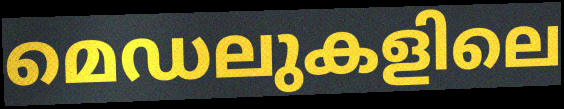
മെഡലുകളിലെ